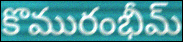
కొమురంభీమ్